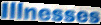
Illnesses